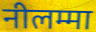
नीलम्मा